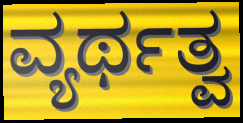
ವ್ಯರ್ಥತ್ವ